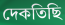
দেকতিছি